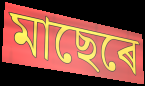
মাছেৰে